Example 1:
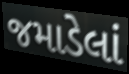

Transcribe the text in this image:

જમાડેલાં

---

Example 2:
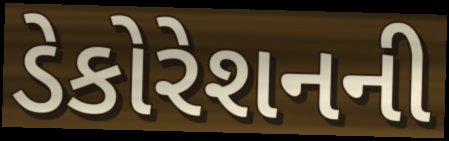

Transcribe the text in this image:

ડેકોરેશનની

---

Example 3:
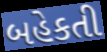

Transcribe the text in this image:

બહેકતી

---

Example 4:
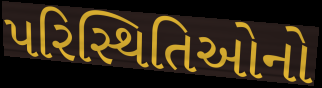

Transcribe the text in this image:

પરિસ્થિતિઓનો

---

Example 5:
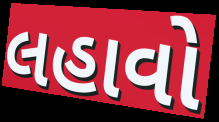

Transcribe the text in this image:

લહાવો